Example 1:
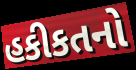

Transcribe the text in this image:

હકીકતનો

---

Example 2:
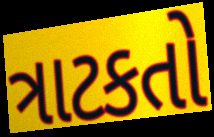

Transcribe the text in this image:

ત્રાટકતો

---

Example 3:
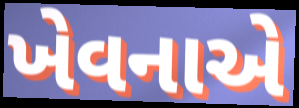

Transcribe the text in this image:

ખેવનાએ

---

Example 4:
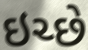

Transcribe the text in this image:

ઇચ્છે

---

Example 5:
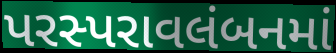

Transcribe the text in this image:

પરસ્પરાવલંબનમાં